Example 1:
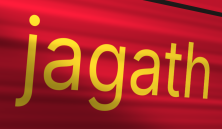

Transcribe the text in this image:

jagath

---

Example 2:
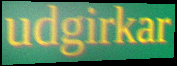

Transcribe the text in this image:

udgirkar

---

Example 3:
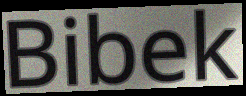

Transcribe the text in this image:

Bibek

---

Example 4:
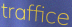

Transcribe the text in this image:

traffice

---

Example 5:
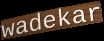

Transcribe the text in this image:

wadekar